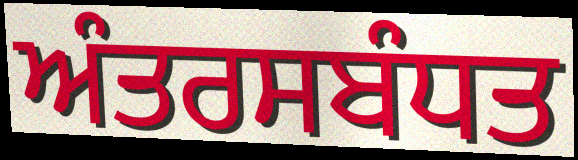
ਅੰਤਰਸਬੰਧਤ